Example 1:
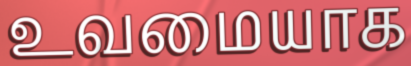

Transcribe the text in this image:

உவமையாக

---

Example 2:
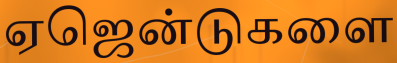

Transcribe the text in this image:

ஏஜென்டுகளை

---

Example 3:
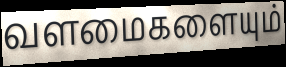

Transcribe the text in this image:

வளமைகளையும்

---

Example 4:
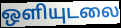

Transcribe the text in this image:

ஒளியுடலை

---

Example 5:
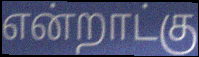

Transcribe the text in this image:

என்றாட்கு